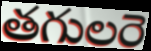
తగులరె